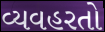
વ્યવહરતો